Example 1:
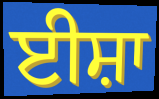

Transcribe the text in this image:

ਈਸ਼ਾ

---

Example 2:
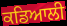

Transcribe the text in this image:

ਕਡਿਆਲੀ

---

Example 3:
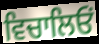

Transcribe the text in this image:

ਵਿਚਾਲਿਓਂ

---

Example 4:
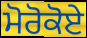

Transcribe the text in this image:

ਮੋਰੋਕੋਏ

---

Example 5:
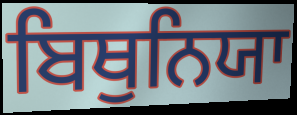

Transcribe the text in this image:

ਬਿਥੁਨਿਯਾ